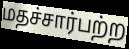
மதச்சார்பற்ற